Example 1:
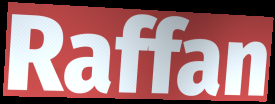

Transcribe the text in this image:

Raffan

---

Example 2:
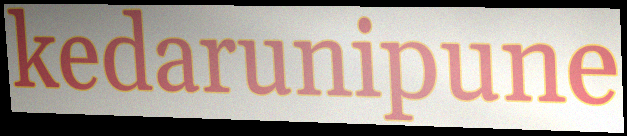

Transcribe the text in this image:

kedarunipune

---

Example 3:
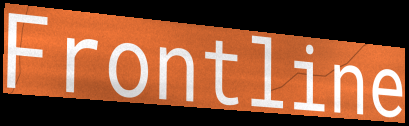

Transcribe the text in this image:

Frontline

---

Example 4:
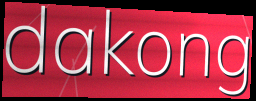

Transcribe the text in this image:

dakong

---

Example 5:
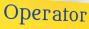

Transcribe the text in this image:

Operator